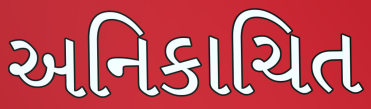
અનિકાચિત